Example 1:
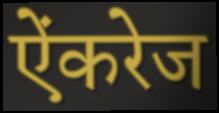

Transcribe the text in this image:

ऐंकरेज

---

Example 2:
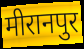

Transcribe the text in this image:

मीरानपुर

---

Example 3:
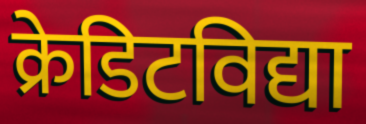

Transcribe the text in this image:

क्रेडिटविद्या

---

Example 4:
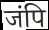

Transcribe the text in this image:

जंपि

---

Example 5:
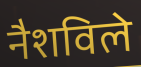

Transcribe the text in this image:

नैशविले